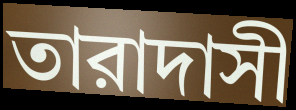
তারাদাসী